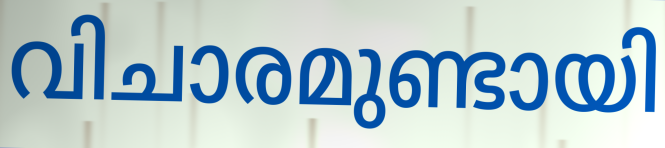
വിചാരമുണ്ടായി